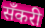
सँकरी